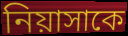
নিয়াসাকে